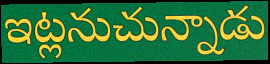
ఇట్లనుచున్నాడు